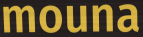
mouna